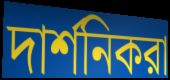
দার্শনিকরা